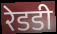
रेडडी